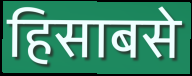
हिसाबसे